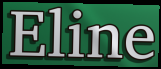
Eline